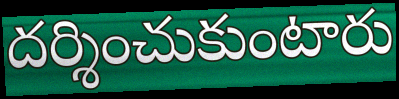
దర్శించుకుంటారు